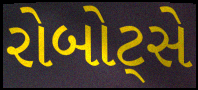
રોબોટ્સે